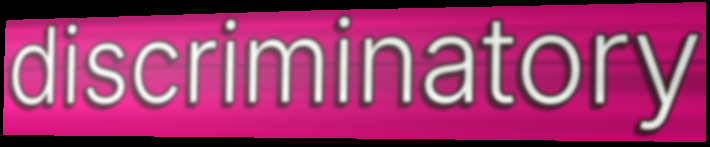
discriminatory